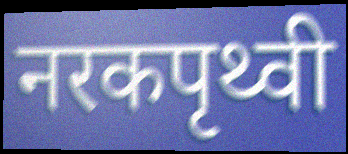
नरकपृथ्वी